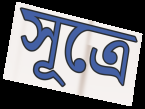
সূত্রে